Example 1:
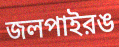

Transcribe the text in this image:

জলপাইরঙ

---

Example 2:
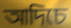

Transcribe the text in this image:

আদিচে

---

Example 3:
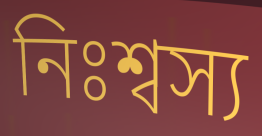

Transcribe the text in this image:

নিঃশ্বস্য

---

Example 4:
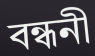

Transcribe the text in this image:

বন্ধনী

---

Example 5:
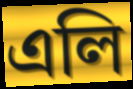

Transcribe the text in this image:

এলি